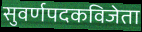
सुवर्णपदकविजेता